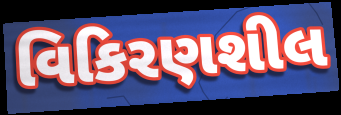
વિકિરણશીલ